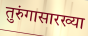
तुरुंगासारख्या